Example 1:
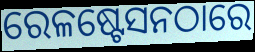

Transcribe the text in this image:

ରେଳଷ୍ଟେସନଠାରେ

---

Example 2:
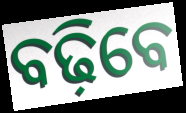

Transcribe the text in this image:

ବଢ଼ିବେ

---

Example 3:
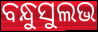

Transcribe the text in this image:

ବନ୍ଧୁସୁଲଭ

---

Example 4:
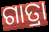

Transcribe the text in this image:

ଗାତ୍ରା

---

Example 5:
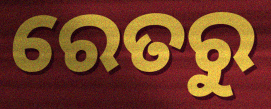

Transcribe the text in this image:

ରେତରୁ